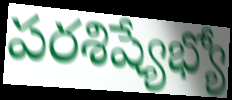
పరశిష్యేభ్యో